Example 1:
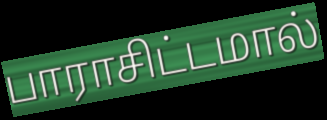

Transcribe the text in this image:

பாராசிட்டமால்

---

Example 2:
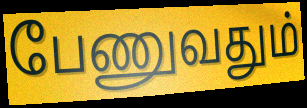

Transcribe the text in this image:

பேணுவதும்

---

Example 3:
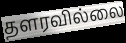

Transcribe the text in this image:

தளரவில்லை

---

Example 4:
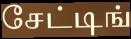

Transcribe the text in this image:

சேட்டிங்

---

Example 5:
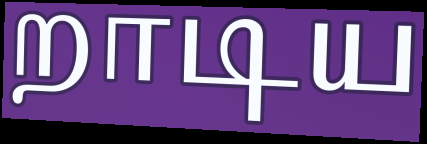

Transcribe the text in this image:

றாடிய